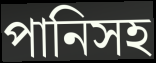
পানিসহ